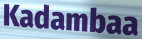
Kadambaa